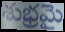
శుభ్రమై